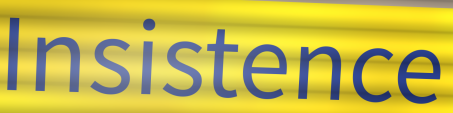
Insistence